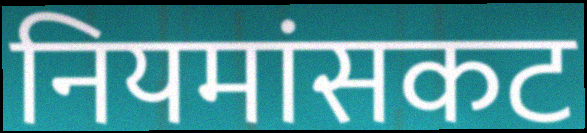
नियमांसकट